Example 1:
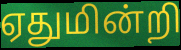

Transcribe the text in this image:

ஏதுமின்றி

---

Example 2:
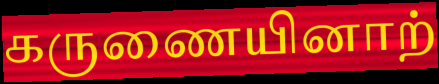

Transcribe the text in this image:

கருணையினாற்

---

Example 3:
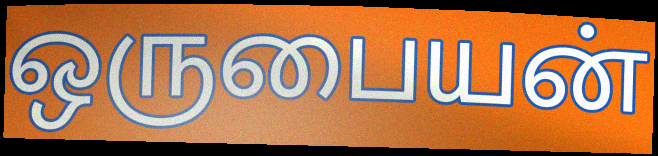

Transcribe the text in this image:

ஒருபையன்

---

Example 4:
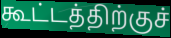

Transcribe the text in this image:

கூட்டத்திற்குச்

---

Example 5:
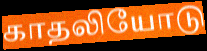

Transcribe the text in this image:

காதலியோடு